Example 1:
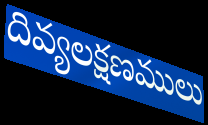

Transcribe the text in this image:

దివ్యలక్షణములు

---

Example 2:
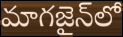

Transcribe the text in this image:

మాగజైన్‌లో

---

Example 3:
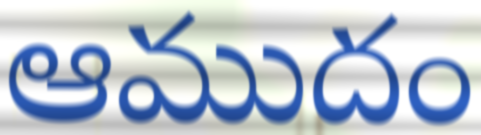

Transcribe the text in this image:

ఆముదం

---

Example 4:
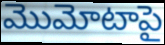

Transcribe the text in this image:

మొమోటాపై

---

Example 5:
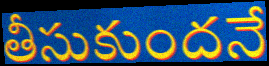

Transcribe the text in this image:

తీసుకుందనే